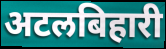
अटलबिहारी